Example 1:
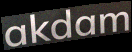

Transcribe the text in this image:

akdam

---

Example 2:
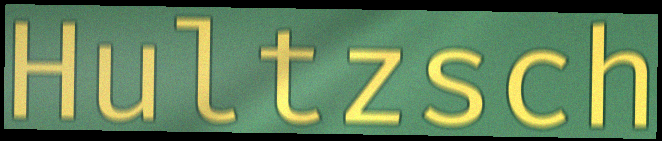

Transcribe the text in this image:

Hultzsch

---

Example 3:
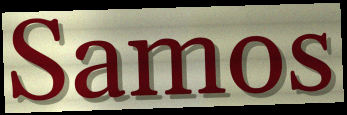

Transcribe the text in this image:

Samos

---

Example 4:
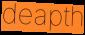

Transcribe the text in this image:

deapth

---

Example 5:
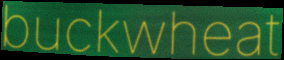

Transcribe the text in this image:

buckwheat